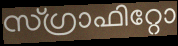
സ്ഗ്രാഫിറ്റോ